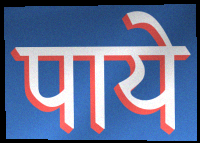
पाये